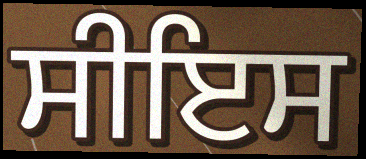
ਸੀਇਸ